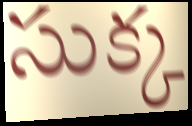
సుక్క